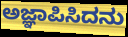
ಅಜ್ಞಾಪಿಸಿದನು